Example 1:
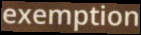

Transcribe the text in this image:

exemption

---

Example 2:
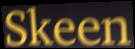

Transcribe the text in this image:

Skeen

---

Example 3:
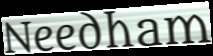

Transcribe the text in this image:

Needham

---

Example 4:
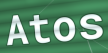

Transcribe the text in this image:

Atos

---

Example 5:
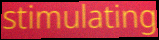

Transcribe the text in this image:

stimulating